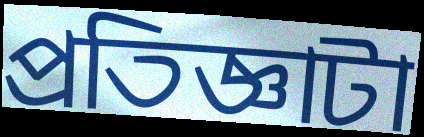
প্রতিজ্ঞাটা